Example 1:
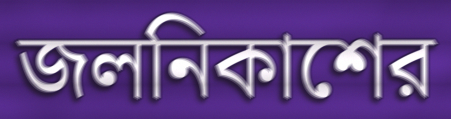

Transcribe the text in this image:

জলনিকাশের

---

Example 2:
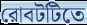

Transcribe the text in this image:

রোবটটিতে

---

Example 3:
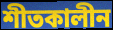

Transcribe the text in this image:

শীতকালীন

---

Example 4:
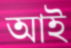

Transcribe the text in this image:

আই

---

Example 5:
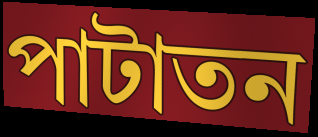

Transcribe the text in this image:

পাটাতন